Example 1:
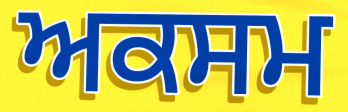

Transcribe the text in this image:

ਅਕਸਮ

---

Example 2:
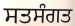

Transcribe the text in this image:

ਸਤਸੰਗਤ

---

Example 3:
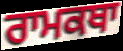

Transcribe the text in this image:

ਰਾਮਕਥਾ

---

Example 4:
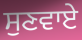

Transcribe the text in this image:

ਸੁਣਵਾਏ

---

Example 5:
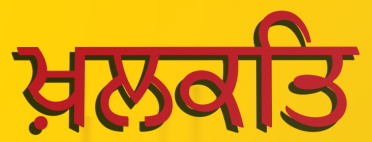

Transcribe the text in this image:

ਖ਼ਲਕਤਿ